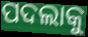
ପଦଲାକୁ